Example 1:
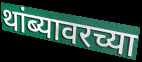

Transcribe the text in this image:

थांब्यावरच्या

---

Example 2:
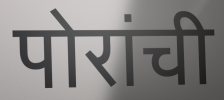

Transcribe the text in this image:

पोरांची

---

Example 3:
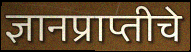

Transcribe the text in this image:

ज्ञानप्राप्तीचे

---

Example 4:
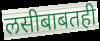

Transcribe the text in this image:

लसीबाबतही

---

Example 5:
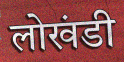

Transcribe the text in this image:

लोखंडी